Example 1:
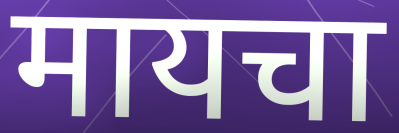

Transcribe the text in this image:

मायचा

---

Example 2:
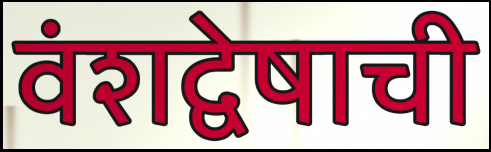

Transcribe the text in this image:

वंशद्वेषाची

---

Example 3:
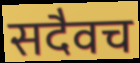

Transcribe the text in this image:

सदैवच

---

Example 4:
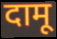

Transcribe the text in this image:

दामू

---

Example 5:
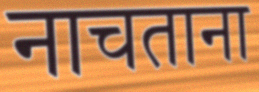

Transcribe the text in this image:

नाचताना